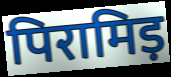
पिरामिड़